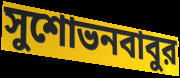
সুশোভনবাবুর